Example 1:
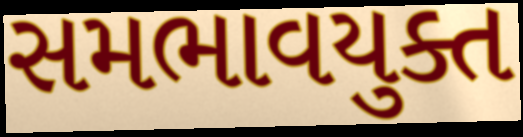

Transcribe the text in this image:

સમભાવયુક્ત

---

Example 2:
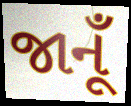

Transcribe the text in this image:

જાનૂઁ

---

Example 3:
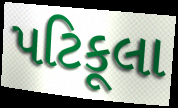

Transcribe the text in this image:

પટિકૂલા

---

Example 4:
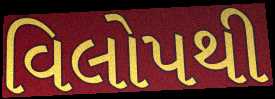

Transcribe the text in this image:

વિલોપથી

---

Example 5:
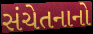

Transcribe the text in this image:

સંચેતનાનો